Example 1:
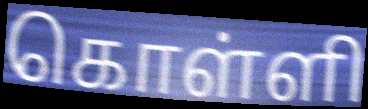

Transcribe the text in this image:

கொள்ளி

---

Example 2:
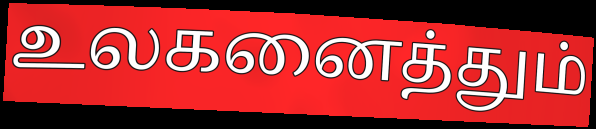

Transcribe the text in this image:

உலகனைத்தும்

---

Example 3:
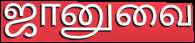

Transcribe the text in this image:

ஜானுவை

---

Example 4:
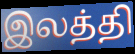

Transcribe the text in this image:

இலத்தி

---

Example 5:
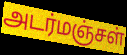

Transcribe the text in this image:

அடர்மஞ்சள்